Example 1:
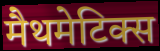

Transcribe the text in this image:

मैथमेटिक्स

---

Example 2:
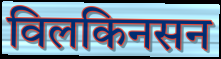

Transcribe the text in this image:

विलकिनसन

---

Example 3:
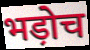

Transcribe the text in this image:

भड़ोच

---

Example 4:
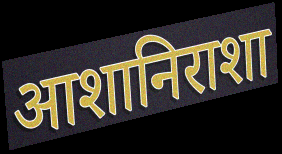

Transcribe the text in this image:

आशानिराशा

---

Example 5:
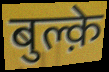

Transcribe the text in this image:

बुल्क़े